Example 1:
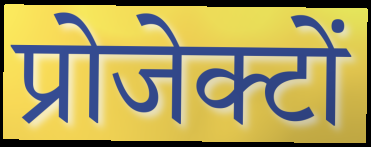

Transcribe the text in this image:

प्रोजेक्टों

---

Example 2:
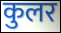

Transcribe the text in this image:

कुलर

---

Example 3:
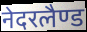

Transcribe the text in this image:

नेदरलैण्ड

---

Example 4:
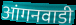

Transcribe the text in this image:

आंगनवाडी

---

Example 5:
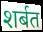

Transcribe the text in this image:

शर्बत